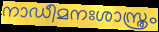
നാഡീമനഃശാസ്ത്രം